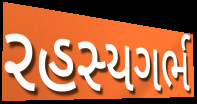
રહસ્યગર્ભ